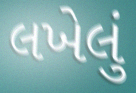
લખેલું